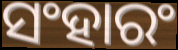
ସଂହାରଂ